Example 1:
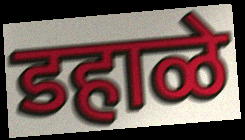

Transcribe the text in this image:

डहाळे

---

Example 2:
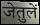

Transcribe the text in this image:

जेतुलें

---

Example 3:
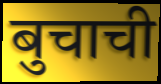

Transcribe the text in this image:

बुचाची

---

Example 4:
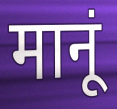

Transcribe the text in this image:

मानूं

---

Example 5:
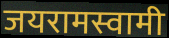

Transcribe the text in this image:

जयरामस्वामी